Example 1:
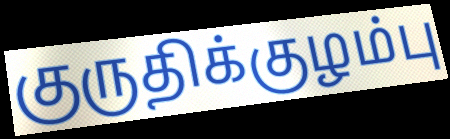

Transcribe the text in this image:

குருதிக்குழம்பு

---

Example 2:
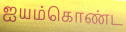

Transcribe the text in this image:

ஐயம்கொண்ட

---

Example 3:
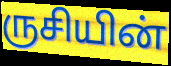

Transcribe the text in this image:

ருசியின்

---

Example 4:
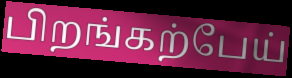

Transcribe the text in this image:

பிறங்கற்பேய்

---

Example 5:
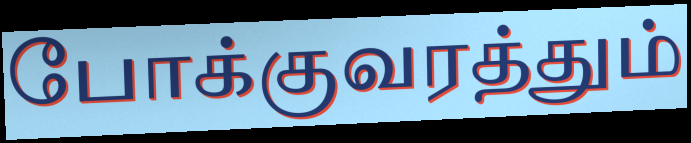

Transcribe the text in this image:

போக்குவரத்தும்